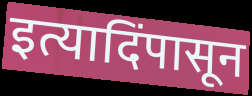
इत्यादिंपासून